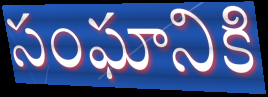
సంఘానికి